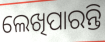
ଲେଖିପାରନ୍ତି